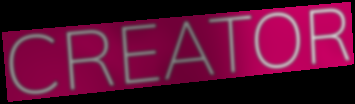
CREATOR